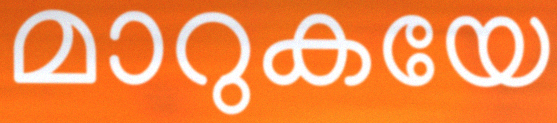
മാറുകയേ